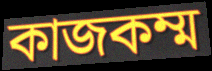
কাজকম্ম